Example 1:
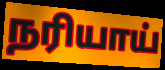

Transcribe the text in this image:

நரியாய்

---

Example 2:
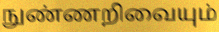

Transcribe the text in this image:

நுண்ணறிவையும்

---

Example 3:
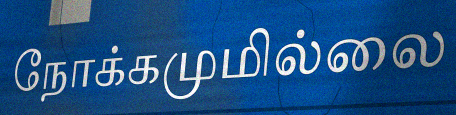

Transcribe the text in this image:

நோக்கமுமில்லை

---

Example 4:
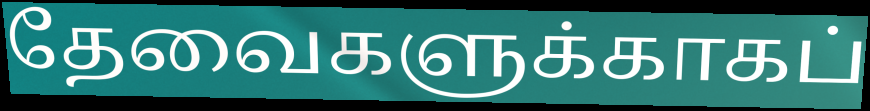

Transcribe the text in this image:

தேவைகளுக்காகப்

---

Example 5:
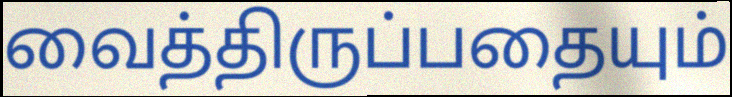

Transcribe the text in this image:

வைத்திருப்பதையும்